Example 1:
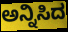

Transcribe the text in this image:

ಅನ್ನಿಸಿದ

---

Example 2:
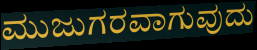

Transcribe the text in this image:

ಮುಜುಗರವಾಗುವುದು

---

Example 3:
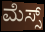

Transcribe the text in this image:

ಮೆಸ್ಸ್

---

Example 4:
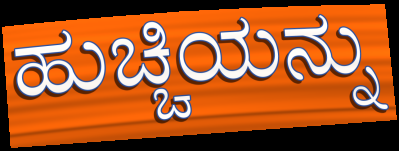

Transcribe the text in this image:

ಹುಚ್ಚಿಯನ್ನು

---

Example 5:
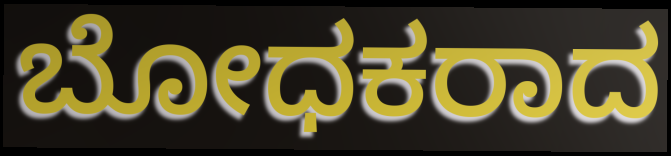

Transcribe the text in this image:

ಬೋಧಕರಾದ